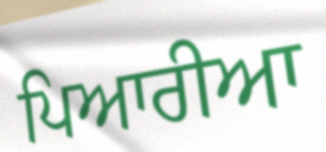
ਪਿਆਰੀਆ